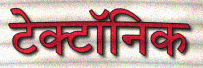
टेक्टॉनिक